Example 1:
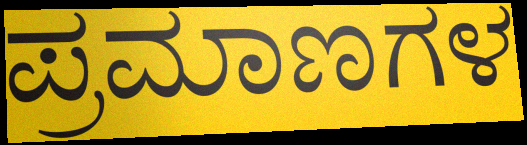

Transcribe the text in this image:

ಪ್ರಮಾಣಗಳ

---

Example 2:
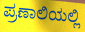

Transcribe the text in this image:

ಪ್ರಣಾಲಿಯಲ್ಲಿ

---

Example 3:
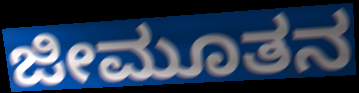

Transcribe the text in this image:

ಜೀಮೂತನ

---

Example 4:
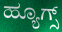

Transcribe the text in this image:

ಹ್ಯೂಗ್ಸ್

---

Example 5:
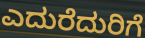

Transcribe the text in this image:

ಎದುರೆದುರಿಗೆ